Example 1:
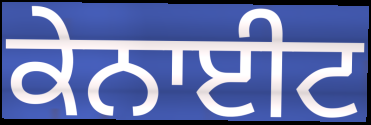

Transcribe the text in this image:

ਕੇਨਾਈਟ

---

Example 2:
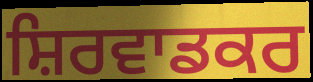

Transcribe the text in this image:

ਸ਼ਿਰਵਾਡਕਰ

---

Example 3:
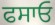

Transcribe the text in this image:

ਫਸਾਓ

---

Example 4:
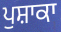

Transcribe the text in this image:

ਪੁਸ਼ਾਕਾ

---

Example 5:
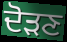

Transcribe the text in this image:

ਦੋੜਣ